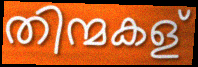
തിന്മകള്